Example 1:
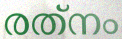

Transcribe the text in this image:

രത്‌നം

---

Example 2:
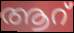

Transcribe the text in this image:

ആറ്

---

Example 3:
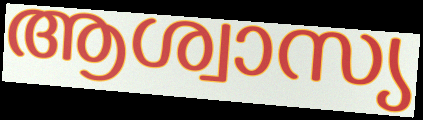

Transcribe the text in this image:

ആശ്വാസ്യ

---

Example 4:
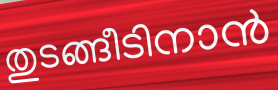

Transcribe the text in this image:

തുടങ്ങീടിനാൻ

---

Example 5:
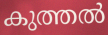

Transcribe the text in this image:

കുത്തൽ